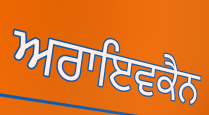
ਅਰਾਇਵਕੈਨ